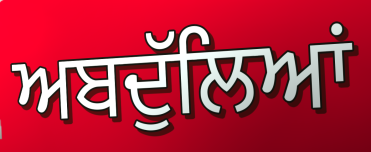
ਅਬਦੁੱਲਿਆਂ